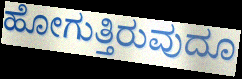
ಹೋಗುತ್ತಿರುವುದೂ